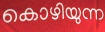
കൊഴിയുന്ന